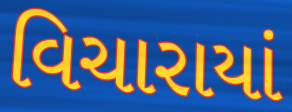
વિચારાયાં